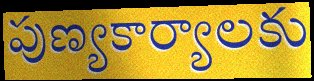
పుణ్యకార్యాలకు